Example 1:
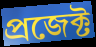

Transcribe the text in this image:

প্রজেক্ট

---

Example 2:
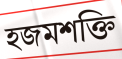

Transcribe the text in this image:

হজমশক্তি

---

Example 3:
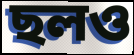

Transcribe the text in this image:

ছলও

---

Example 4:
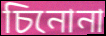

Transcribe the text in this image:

চিনোনা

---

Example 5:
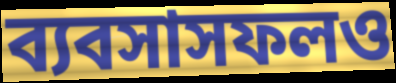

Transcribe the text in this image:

ব্যবসাসফলও